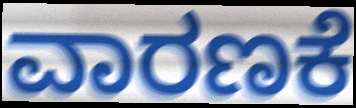
ವಾರಣಕೆ